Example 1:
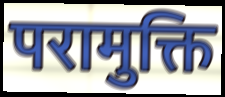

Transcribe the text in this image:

परामुक्ति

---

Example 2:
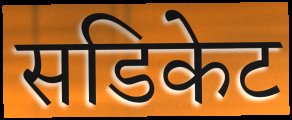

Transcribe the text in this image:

सडिकेट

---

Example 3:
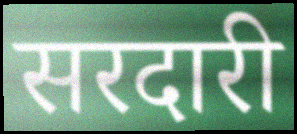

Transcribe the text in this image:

सरदारी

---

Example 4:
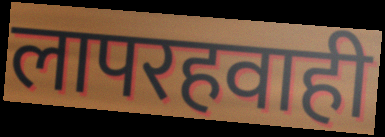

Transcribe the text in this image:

लापरहवाही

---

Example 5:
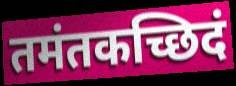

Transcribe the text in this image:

तमंतकच्छिदं